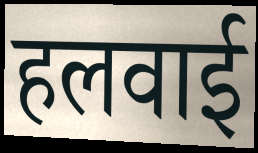
हलवाई